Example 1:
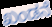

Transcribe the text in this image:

ಖಂಡನೆ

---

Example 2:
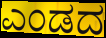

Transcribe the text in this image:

ಎಂಡದ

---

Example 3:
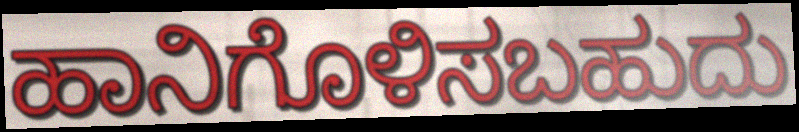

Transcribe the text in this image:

ಹಾನಿಗೊಳಿಸಬಹುದು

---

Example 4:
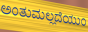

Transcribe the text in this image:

ಅಂತುಮಲ್ಲದೆಯುಂ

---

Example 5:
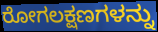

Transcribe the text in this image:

ರೋಗಲಕ್ಷಣಗಳನ್ನು